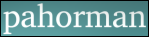
pahorman